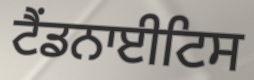
ਟੈਂਡਨਾਈਟਿਸ